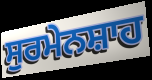
ਸੁਰਮੇਨਸ਼ਾਹ